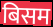
बिसम